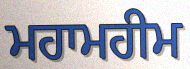
ਮਹਾਮਹੀਮ